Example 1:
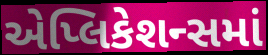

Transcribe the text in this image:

એપ્લિકેશન્સમાં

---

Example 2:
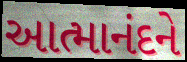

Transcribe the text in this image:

આત્માનંદને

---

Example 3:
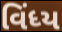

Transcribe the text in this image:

વિંધ્ય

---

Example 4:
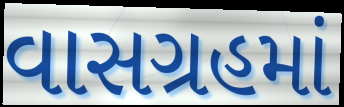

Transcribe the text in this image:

વાસગ્રહમાં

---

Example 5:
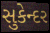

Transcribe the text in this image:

સુકેન્દર